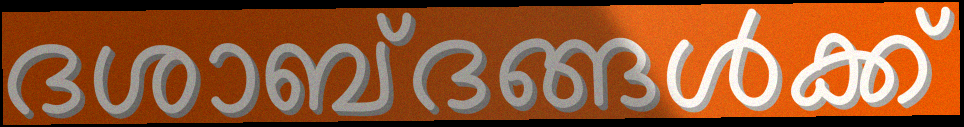
ദശാബ്ദങ്ങൾക്ക്